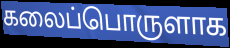
கலைப்பொருளாக